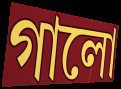
গালো